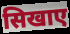
सिखाए